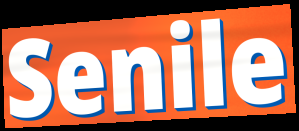
Senile